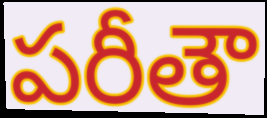
పరీతౌ